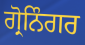
ਗ੍ਰੋਨਿੰਗਰ